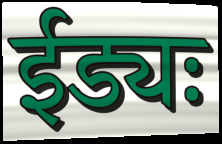
ईड्यः